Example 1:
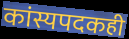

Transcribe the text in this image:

कांस्यपदकही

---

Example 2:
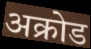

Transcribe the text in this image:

अक्रोड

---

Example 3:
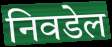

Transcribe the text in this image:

निवडेल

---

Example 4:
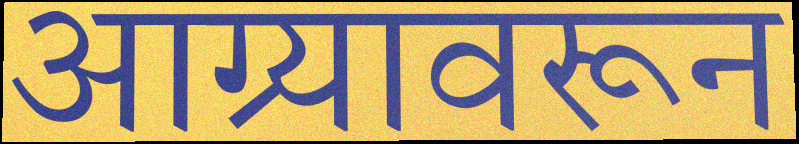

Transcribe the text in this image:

आग्र्यावरून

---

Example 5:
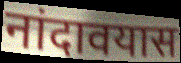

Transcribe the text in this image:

नांदावयास